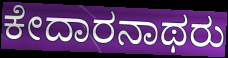
ಕೇದಾರನಾಥರು